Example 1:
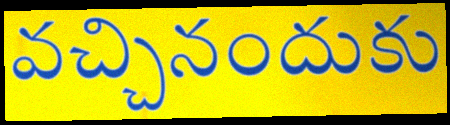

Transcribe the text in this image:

వచ్చినందుకు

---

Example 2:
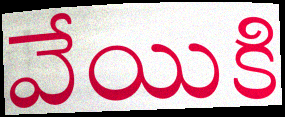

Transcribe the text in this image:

వేయికి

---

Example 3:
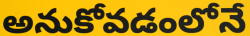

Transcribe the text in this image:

అనుకోవడంలోనే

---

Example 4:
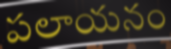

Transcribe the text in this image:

పలాయనం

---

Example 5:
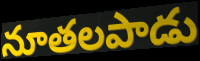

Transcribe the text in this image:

నూతలపాడు